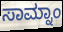
ಸಾಮ್ನಾಂ